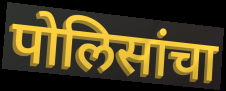
पोलिसांचा